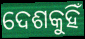
ଦେଶକୁହିଁ